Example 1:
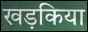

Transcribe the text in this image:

खड़किया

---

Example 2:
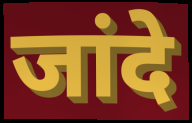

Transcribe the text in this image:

जांदे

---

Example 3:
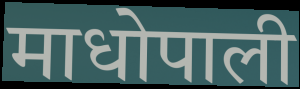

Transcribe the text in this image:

माधोपाली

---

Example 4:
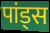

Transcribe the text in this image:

पांड्स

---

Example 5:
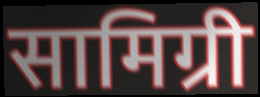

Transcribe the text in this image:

सामिग्री